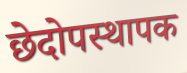
छेदोपस्थापक